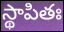
స్థాపితః